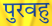
पुरवहु